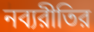
নব্যরীতির